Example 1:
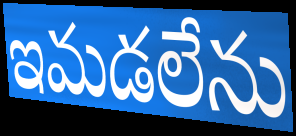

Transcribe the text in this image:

ఇమడలేను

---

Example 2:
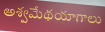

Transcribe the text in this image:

అశ్వమేథయాగాలు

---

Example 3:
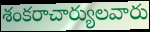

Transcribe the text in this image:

శంకరాచార్యులవారు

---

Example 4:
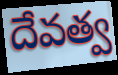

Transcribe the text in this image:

దేవత్వ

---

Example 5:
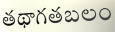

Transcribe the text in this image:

తథాగతబలం